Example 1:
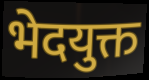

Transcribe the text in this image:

भेदयुक्त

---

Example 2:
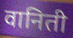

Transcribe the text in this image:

वानिती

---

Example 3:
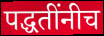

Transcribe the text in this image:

पद्धतींनीच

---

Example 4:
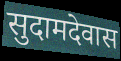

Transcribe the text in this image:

सुदामदेवास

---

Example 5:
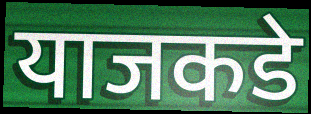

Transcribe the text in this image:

याजकडे